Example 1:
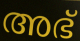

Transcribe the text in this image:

അഭ്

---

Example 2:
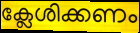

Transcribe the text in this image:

ക്ലേശിക്കണം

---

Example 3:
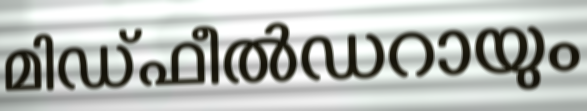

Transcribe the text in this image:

മിഡ്ഫീൽഡറായും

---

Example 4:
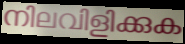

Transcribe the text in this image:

നിലവിളിക്കുക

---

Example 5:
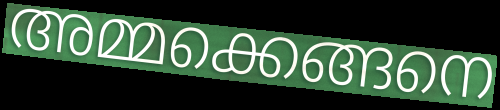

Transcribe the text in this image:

അമ്മക്കെങ്ങനെ